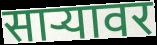
साऱ्यावर